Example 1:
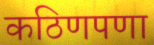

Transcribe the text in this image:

कठिणपणा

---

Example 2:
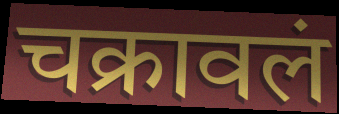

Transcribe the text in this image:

चक्रावलं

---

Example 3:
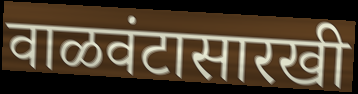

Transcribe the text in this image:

वाळवंटासारखी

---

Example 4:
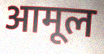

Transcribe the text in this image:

आमूल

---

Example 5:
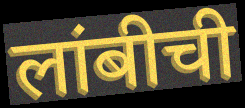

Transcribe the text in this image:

लांबीची